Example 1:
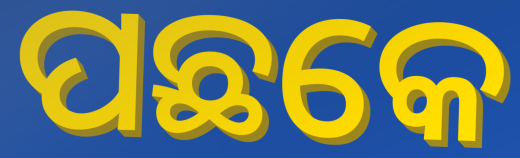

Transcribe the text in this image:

ପଛକେ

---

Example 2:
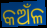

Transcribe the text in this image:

କଅଁଳ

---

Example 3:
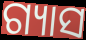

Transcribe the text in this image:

ଗ୍ୟାସ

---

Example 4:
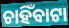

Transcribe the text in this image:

ଚାହିଁବାଟା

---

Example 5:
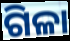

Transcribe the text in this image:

ଗିଳା